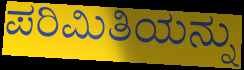
ಪರಿಮಿತಿಯನ್ನು